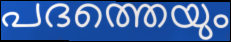
പദത്തെയും